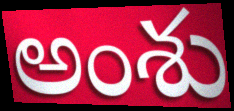
అంశు